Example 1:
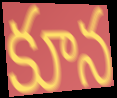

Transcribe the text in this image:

కూన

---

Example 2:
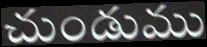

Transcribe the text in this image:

చుండుము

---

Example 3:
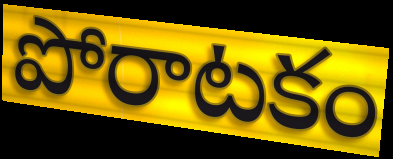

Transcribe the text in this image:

పోరాటకం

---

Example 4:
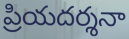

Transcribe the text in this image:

ప్రియదర్శనా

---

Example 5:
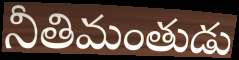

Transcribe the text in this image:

నీతిమంతుడు